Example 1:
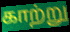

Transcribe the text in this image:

காற்று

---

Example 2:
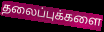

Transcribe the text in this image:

தலைப்புக்களை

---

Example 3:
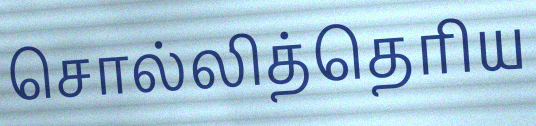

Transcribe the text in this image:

சொல்லித்தெரிய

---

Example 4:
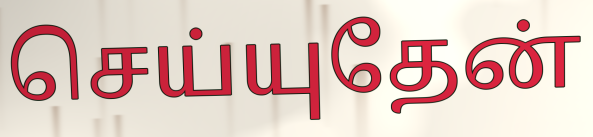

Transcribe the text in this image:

செய்யுதேன்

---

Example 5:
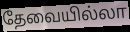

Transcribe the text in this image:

தேவையில்லா